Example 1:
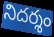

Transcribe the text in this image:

నిదర్శం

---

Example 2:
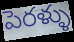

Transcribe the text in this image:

పెరళ్ళు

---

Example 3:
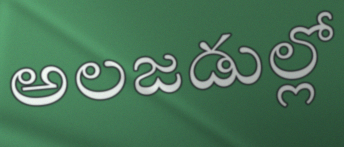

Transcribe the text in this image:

అలజడుల్లో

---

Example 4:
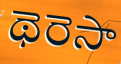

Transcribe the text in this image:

థెరెసా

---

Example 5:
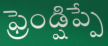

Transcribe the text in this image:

ఫ్రెండ్షిప్పే